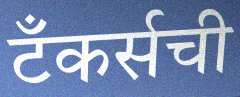
टँकर्सची